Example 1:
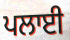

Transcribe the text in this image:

ਪਲਾਈ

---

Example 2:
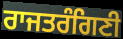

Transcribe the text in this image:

ਰਾਜਤਰੰਗਿਣੀ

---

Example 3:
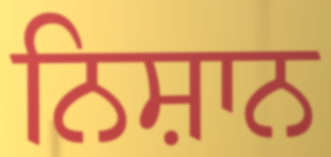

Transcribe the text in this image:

ਨਿਸ਼ਾਨ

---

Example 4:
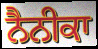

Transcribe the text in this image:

ਨੈਨੀਕਾ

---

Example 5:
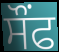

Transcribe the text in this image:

ਸੌਂਫ